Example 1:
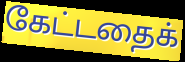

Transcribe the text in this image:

கேட்டதைக்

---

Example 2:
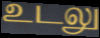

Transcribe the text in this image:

உடலு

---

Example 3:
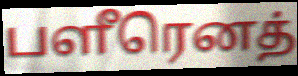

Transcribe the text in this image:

பளீரெனத்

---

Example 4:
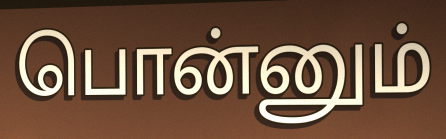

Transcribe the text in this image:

பொன்னும்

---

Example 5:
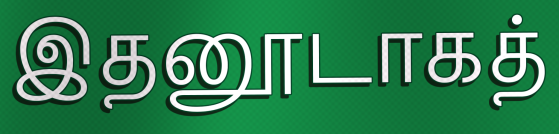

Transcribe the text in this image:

இதனூடாகத்